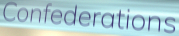
Confederations